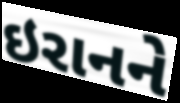
ઇરાનને